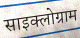
साइक्लोग्राम